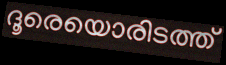
ദൂരെയൊരിടത്ത്